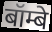
बॉम्बे